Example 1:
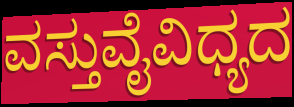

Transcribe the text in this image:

ವಸ್ತುವೈವಿಧ್ಯದ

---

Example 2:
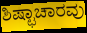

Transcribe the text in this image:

ಶಿಷ್ಟಾಚಾರವು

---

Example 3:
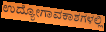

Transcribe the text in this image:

ಉದ್ಯೋಗಾವಕಾಶಗಳಲ್ಲಿ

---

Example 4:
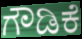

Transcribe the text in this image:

ಗೌಡಿಕೆ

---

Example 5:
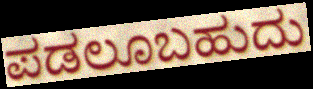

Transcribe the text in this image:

ಪಡಲೂಬಹುದು